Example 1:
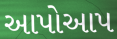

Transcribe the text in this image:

આપોઆપ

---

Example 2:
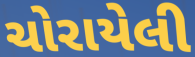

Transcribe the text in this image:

ચોરાયેલી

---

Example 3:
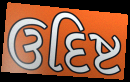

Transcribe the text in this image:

ઉદિષ્ટ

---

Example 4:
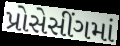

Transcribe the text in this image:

પ્રોસેસીંગમાં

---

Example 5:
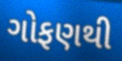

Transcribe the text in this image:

ગોફણથી